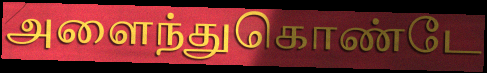
அளைந்துகொண்டே